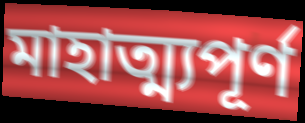
মাহাত্ম্যপূর্ণ